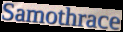
Samothrace